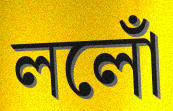
ললোঁ